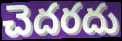
చెదరదు